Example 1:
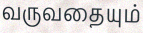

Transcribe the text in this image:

வருவதையும்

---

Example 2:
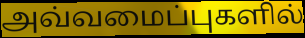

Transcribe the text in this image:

அவ்வமைப்புகளில்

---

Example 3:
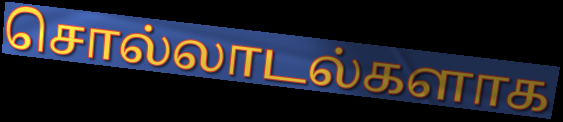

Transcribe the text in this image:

சொல்லாடல்களாக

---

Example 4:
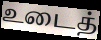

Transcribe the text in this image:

உடைத்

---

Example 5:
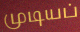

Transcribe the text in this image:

முடியப்